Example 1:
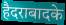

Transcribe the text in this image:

हैदराबादके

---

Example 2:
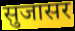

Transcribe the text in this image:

सुजासर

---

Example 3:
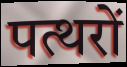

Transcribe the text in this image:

पत्थरों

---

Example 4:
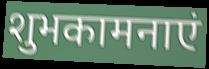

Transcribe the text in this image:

शुभकामनाएं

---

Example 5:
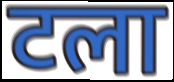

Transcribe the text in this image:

टला